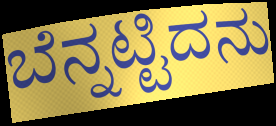
ಬೆನ್ನಟ್ಟಿದನು